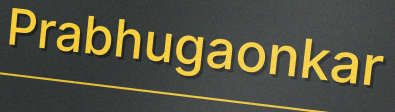
Prabhugaonkar